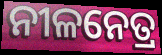
ନୀଳନେତ୍ର